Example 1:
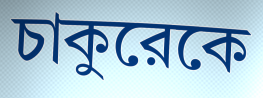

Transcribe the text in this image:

চাকুরেকে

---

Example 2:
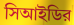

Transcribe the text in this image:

সিআইডির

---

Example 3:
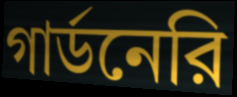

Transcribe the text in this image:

গার্ডনেরি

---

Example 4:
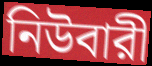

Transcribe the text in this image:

নিউবারী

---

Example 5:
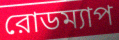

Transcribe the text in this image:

রোডম্যাপ